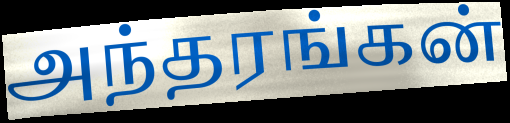
அந்தரங்கன்